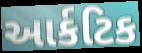
આર્કટિક